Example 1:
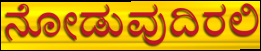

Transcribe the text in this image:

ನೋಡುವುದಿರಲಿ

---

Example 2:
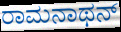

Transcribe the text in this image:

ರಾಮನಾಥನ್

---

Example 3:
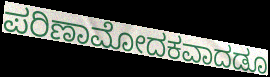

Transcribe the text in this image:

ಪರಿಣಾಮೋದಕವಾದಡೂ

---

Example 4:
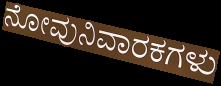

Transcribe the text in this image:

ನೋವುನಿವಾರಕಗಳು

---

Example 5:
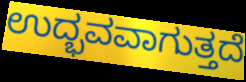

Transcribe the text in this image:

ಉದ್ಭವವಾಗುತ್ತದೆ